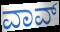
ವಾವ್